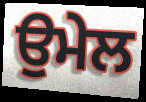
ਉਮੇਲ